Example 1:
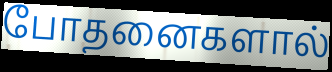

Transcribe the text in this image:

போதனைகளால்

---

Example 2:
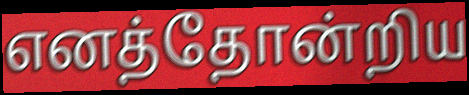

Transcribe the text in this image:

எனத்தோன்றிய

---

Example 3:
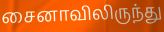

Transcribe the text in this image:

சைனாவிலிருந்து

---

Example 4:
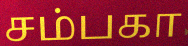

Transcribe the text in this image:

சம்பகா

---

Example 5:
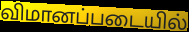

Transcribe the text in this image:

விமானப்படையில்